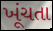
ખૂંચતા